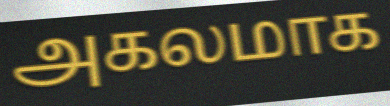
அகலமாக